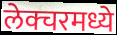
लेक्चरमध्ये